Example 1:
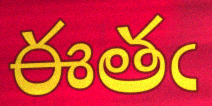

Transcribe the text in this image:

ఈతఁ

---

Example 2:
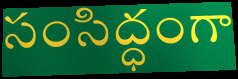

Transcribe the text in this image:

సంసిద్ధంగా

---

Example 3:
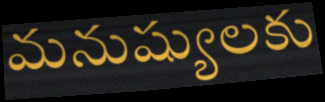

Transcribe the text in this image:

మనుష్యులకు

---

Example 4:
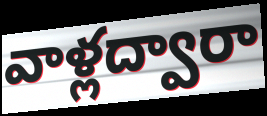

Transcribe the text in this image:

వాళ్లద్వారా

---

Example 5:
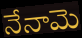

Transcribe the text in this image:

నేనామె